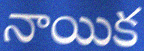
నాయిక